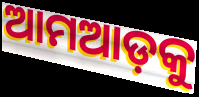
ଆମଆଡ଼କୁ